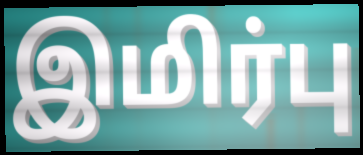
இமிர்பு